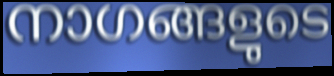
നാഗങ്ങളുടെ